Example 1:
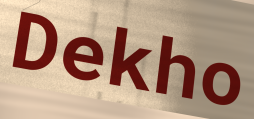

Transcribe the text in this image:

Dekho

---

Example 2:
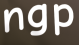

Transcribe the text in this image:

ngp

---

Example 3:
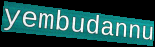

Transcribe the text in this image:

yembudannu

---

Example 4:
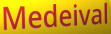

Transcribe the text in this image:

Medeival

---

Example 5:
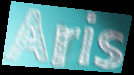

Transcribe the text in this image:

Aris